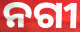
ନଗୀ